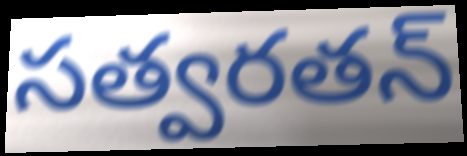
సత్వరతన్